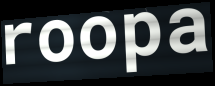
roopa